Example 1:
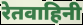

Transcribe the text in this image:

रेतवाहिनी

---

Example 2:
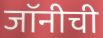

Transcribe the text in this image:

जॉनीची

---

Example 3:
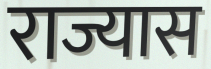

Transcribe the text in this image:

राज्यास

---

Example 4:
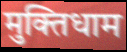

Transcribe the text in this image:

मुक्तिधाम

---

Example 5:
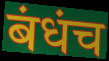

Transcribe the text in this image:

बंधंच